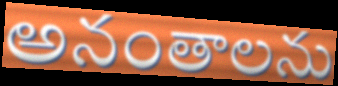
అనంతాలను